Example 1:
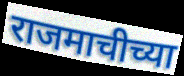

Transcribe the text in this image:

राजमाचीच्या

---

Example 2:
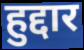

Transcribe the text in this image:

हुद्दार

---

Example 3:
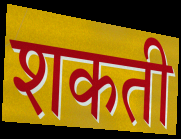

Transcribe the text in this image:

शकती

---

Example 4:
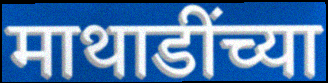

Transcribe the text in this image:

माथाडींच्या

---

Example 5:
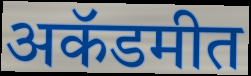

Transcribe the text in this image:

अकॅडमीत